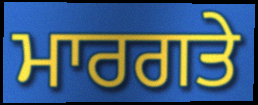
ਮਾਰਗਤੇ